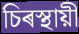
চিৰস্থায়ী